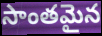
సాంతమైన